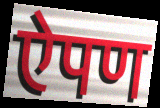
ऐपण